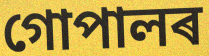
গোপালৰ